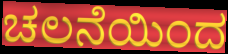
ಚಲನೆಯಿಂದ